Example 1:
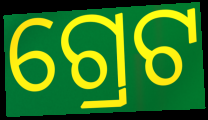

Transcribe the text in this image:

ଗ୍ରେଟ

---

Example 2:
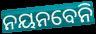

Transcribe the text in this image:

ନୟନବେନି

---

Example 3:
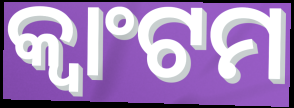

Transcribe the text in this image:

କ୍ୱାଂଟମ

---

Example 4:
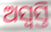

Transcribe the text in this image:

ଅସ୍ୱସ୍ତି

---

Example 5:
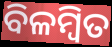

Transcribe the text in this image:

ବିଳମ୍ବିତ